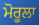
ਮੋਰੂਲਾ